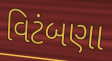
વિટંબણા